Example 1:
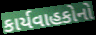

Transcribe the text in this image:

કાર્યવાહકોનો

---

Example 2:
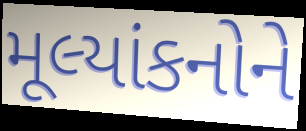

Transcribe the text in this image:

મૂલ્યાંકનોને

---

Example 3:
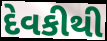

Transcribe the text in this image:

દેવકીથી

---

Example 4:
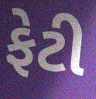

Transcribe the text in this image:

ફેટી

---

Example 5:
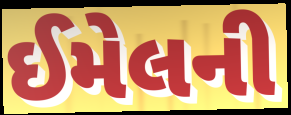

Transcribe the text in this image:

ઈમેલની